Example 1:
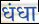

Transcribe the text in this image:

धंधा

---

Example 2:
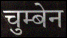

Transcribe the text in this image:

चुम्बेन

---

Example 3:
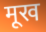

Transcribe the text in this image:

मूख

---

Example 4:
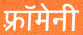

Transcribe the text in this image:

फ़्रॉमेनी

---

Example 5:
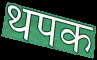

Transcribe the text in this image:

थपक